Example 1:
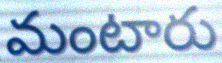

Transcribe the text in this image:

మంటారు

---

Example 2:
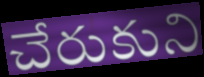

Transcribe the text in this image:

చేరుకుని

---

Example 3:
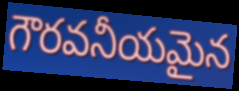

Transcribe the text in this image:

గౌరవనీయమైన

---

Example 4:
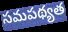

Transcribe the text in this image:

సమపథ్యత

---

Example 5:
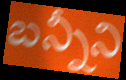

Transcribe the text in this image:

బన్నీని